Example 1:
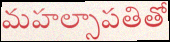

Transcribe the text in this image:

మహల్సాపతితో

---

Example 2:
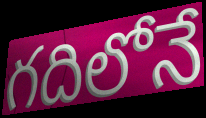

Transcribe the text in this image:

గదిలోనే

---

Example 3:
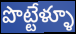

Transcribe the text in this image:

పొట్టేళ్ళూ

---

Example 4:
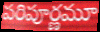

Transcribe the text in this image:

పరిపూర్ణమూ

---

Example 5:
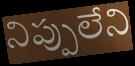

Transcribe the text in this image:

నిప్పులేని